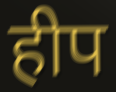
हीप